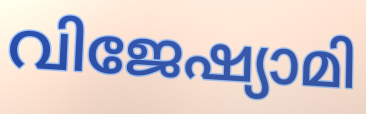
വിജേഷ്യാമി